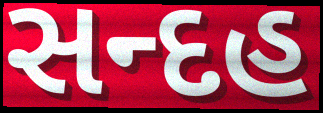
સન્દહ